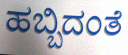
ಹಬ್ಬಿದಂತೆ